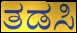
ತಡಸಿ